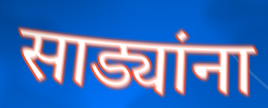
साड्यांना